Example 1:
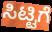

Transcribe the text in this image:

ಸಿಟ್ಟಿಗೆ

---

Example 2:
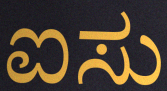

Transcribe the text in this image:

ಐಸು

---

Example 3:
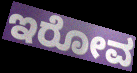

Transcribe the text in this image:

ಇರೋವ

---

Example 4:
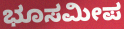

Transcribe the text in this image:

ಭೂಸಮೀಪ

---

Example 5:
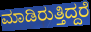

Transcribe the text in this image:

ಮಾಡಿರುತ್ತಿದ್ದರೆ